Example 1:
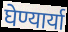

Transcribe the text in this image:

घेण्यार्या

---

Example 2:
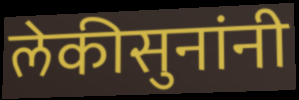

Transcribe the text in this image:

लेकीसुनांनी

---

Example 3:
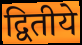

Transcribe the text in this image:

द्वितीये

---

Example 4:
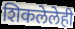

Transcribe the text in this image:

शिकलेलेही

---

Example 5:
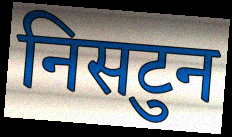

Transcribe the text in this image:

निसटुन